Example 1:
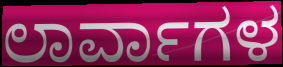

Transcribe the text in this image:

ಲಾರ್ವಾಗಳ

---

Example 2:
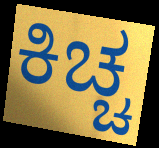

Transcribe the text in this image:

ಕಿಚ್ಚ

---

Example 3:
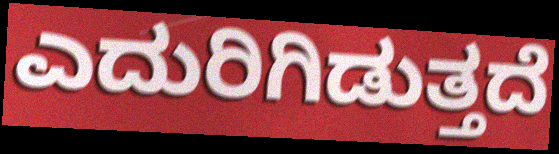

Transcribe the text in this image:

ಎದುರಿಗಿಡುತ್ತದೆ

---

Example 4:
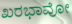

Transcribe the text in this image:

ಖರಭಾವೋ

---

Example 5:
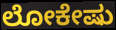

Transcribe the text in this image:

ಲೋಕೇಷು